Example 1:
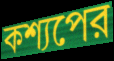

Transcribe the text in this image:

কশ্যপের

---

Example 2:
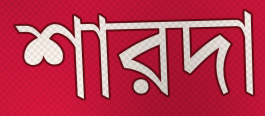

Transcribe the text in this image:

শারদা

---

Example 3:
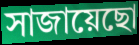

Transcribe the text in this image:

সাজায়েছো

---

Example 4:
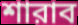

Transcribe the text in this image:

শারাব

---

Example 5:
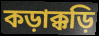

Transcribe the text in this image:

কড়াক্কড়ি